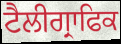
ਟੈਲੀਗ੍ਰਾਫਿਕ